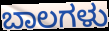
ಬಾಲಗಳು